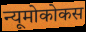
न्यूमोकोकस